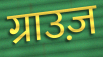
ग्राउज़